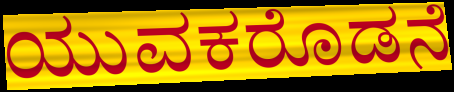
ಯುವಕರೊಡನೆ